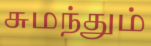
சுமந்தும்